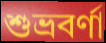
শুভ্রবর্ণা